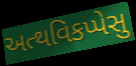
અત્થવિકપ્પેસુ